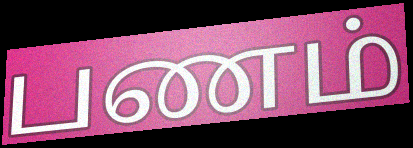
பணம்